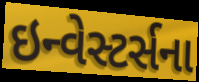
ઇન્વેસ્ટર્સના